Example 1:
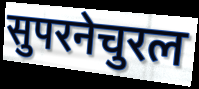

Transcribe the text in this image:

सुपरनेचुरल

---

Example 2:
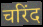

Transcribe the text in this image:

चरिंद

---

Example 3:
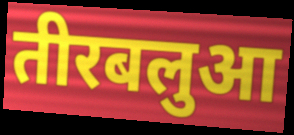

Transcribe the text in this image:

तीरबलुआ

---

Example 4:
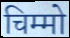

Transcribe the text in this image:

चिम्मो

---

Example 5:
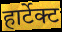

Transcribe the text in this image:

हार्टेक्ट